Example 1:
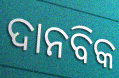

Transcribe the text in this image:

ଦାନବିକ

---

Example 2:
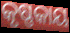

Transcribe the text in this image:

କୃଷ୍ଣକାୟ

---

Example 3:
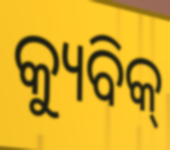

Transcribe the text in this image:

କ୍ୟୁବିକ୍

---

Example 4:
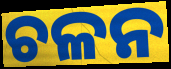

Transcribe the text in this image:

ଚଳନ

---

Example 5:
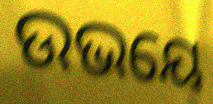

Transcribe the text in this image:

ଉଭୟେ